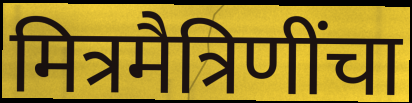
मित्रमैत्रिणींचा